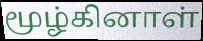
மூழ்கினாள்